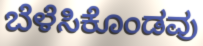
ಬೆಳೆಸಿಕೊಂಡವು